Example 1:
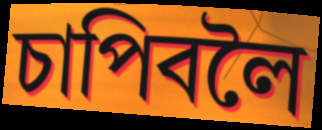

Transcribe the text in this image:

চাপিবলৈ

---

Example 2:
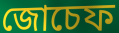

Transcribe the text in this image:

জোচেফ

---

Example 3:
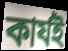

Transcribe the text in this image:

কাৰ্যই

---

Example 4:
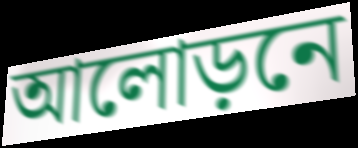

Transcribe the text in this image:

আলোড়নে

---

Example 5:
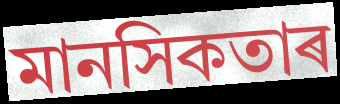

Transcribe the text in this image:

মানসিকতাৰ